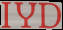
IYD